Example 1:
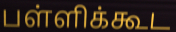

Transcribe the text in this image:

பள்ளிக்கூட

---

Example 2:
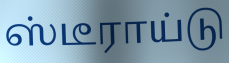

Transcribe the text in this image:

ஸ்டீராய்டு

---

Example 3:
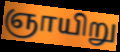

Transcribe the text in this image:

ஞாயிறு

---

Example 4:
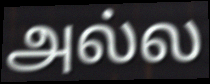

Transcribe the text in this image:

அல்ல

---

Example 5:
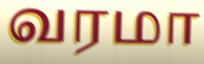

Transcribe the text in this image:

வரமா